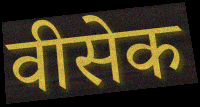
वीसेक